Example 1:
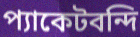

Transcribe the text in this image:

প্যাকেটবন্দি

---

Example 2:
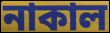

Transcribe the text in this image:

নাকাল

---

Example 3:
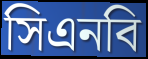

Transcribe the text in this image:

সিএনবি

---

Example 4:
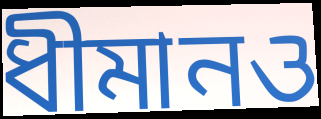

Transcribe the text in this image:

ধীমানও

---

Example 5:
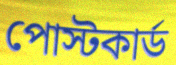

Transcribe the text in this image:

পোস্টকার্ড